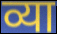
व्या